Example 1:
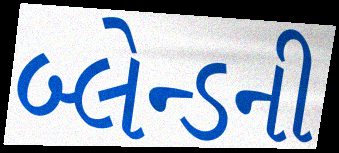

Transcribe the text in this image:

બ્લેન્ડની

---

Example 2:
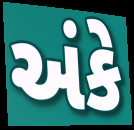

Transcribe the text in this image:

અંકે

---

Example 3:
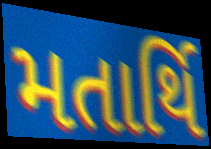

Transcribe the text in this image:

મતાર્થિ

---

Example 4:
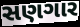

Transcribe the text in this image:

સણગાર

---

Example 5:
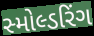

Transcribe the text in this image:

સ્મોલ્ડરિંગ